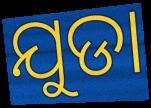
ଯୁଡା